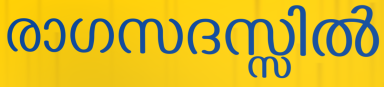
രാഗസദസ്സിൽ